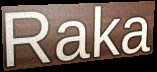
Raka